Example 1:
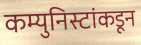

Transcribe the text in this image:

कम्युनिस्टांकडून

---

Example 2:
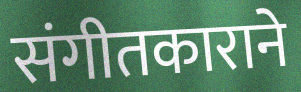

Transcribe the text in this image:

संगीतकाराने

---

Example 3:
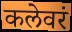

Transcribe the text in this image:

कलेवरं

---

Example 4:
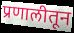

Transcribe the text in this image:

प्रणालीतून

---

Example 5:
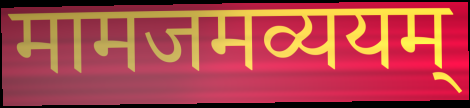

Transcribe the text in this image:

मामजमव्ययम्